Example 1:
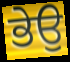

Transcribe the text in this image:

ਭੇਉ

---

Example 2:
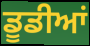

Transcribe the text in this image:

ਡੂਡੀਆਂ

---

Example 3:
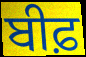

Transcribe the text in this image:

ਬੀਫ਼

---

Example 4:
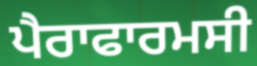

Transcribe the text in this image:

ਪੈਰਾਫਾਰਮਸੀ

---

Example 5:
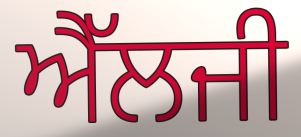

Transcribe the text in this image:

ਐੱਲਜੀ